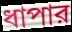
ধাপার